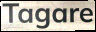
Tagare